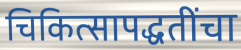
चिकित्सापद्धतींचा